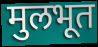
मुलभूत